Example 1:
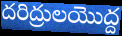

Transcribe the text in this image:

దరిద్రులయొద్ద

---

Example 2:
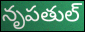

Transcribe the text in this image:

నృపతుల్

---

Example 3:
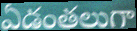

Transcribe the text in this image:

ఏడంతలుగా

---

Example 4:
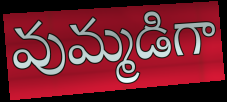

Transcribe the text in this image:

వుమ్మడిగా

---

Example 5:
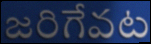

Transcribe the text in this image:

జరిగేవట